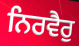
ਨਿਰਵੈਰੁ